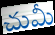
చుమీ